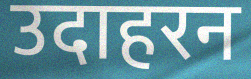
उदाहरन